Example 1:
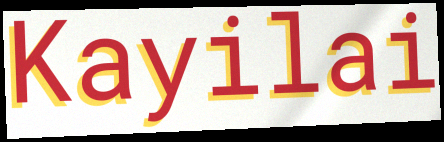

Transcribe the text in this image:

Kayilai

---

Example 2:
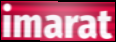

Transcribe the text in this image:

imarat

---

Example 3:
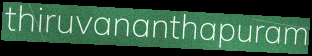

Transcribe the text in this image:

thiruvananthapuram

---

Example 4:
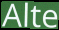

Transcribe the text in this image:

Alte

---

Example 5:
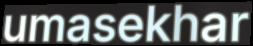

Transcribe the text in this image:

umasekhar